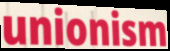
unionism